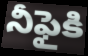
నీఫైకి